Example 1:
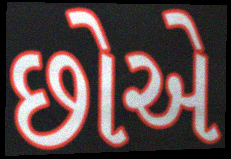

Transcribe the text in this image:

છોએ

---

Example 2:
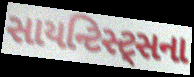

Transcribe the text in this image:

સાયન્ટિસ્ટ્સના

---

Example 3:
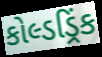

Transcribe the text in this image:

કોલ્ડડ્રિંક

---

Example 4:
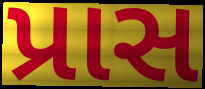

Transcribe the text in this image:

પ્રાસ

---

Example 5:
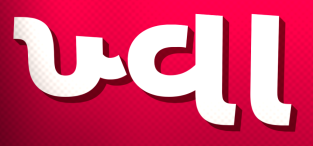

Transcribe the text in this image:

ખ્વા